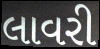
લાવરી